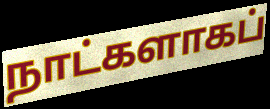
நாட்களாகப்